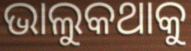
ଭାଲୁକଥାକୁ